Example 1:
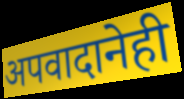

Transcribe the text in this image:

अपवादानेही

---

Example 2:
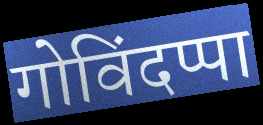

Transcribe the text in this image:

गोविंदप्पा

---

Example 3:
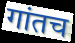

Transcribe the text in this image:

गांतच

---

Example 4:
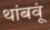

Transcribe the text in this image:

थांबवूं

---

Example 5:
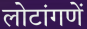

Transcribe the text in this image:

लोटांगणें